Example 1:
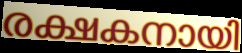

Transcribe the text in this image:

രക്ഷകനായി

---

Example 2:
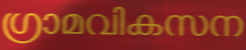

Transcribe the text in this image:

ഗ്രാമവികസന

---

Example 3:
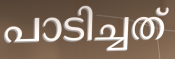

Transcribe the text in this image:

പാടിച്ചത്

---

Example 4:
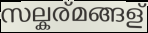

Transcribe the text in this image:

സല്കര്മങ്ങള്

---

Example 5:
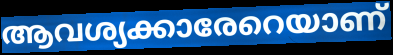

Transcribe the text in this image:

ആവശ്യക്കാരേറെയാണ്